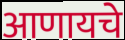
आणायचे